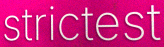
strictest